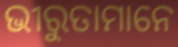
ଭୀରୁତାମାନେ